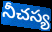
నీచస్య